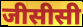
जीसीसी